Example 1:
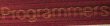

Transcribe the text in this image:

Programmers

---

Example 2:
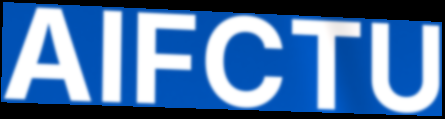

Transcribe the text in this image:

AIFCTU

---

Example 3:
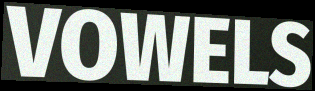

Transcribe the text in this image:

VOWELS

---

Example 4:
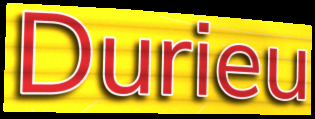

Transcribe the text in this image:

Durieu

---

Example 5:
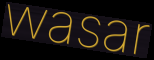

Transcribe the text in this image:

wasar